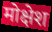
मोक्षेश